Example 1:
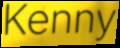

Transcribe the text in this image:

Kenny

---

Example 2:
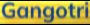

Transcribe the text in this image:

Gangotri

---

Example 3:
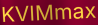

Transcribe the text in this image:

KVIMmax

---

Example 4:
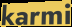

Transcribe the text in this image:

karmi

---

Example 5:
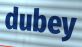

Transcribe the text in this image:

dubey